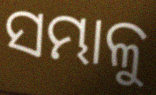
ସମ୍ଭାଳୁ